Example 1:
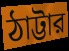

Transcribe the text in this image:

ঠাট্টার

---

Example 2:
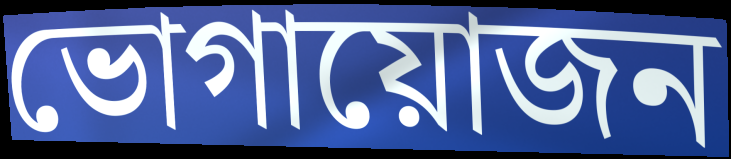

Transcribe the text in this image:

ভোগায়োজন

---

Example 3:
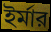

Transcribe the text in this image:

ইর্মার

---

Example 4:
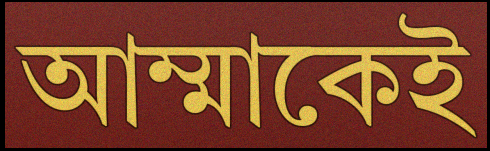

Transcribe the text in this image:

আম্মাকেই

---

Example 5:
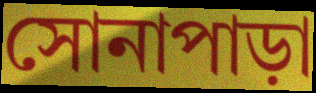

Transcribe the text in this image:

সোনাপাড়া